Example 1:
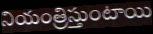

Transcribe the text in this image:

నియంత్రిస్తుంటాయి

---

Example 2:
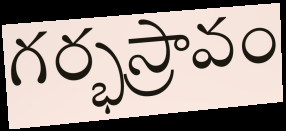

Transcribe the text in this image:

గర్భస్రావం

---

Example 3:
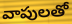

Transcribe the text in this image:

వాపులతో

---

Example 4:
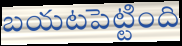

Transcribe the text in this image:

బయటపెట్టింది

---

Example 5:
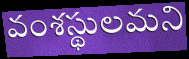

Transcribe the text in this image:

వంశస్థులమని